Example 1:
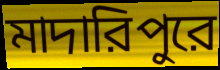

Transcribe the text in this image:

মাদারিপুরে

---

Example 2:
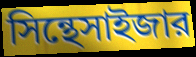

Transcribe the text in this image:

সিন্থেসাইজার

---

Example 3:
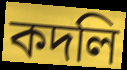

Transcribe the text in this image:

কদলি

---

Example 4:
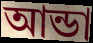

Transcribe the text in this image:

আন্ডা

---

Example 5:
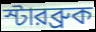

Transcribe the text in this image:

স্টারব্রুক